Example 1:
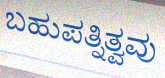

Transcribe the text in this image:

ಬಹುಪತ್ನಿತ್ವವು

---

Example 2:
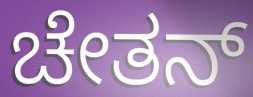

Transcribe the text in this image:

ಚೇತನ್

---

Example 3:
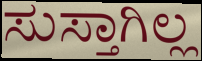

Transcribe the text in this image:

ಸುಸ್ತಾಗಿಲ್ಲ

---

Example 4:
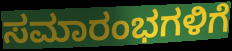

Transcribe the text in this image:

ಸಮಾರಂಭಗಳಿಗೆ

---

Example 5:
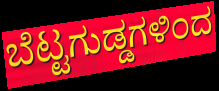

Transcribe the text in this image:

ಬೆಟ್ಟಗುಡ್ಡಗಳಿಂದ